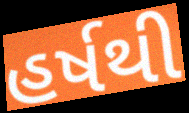
હર્ષથી